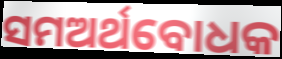
ସମଅର୍ଥବୋଧକ